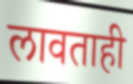
लावताही